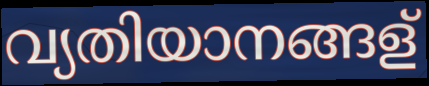
വ്യതിയാനങ്ങള്